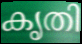
കൃതി